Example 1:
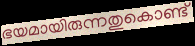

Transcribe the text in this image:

ഭയമായിരുന്നതുകൊണ്ട്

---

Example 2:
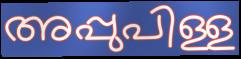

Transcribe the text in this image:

അപ്പുപിള്ള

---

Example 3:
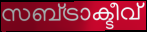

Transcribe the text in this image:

സബ്ട്രാക്ടീവ്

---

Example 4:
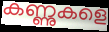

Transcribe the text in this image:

കണ്ണുകളെ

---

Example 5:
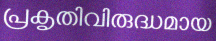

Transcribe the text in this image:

പ്രകൃതിവിരുദ്ധമായ